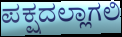
ಪಕ್ಷದಲ್ಲಾಗಲಿ